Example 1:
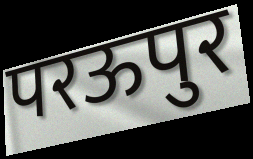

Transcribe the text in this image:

परऊपुर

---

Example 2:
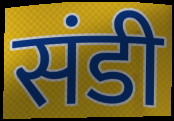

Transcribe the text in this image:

संडी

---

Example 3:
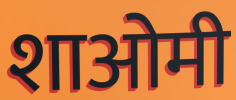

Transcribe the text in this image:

शाओमी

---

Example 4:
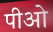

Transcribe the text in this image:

पीओ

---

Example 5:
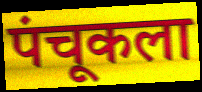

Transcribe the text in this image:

पंचूकला